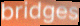
bridges